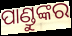
ପାଣ୍ଡୁଙ୍କର